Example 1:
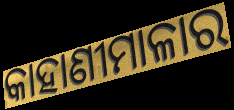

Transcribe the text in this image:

କାହାଣୀମାଳାର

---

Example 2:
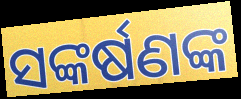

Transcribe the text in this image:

ସଙ୍କର୍ଷଣଙ୍କ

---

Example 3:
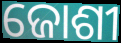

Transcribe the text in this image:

ଜୋଶୀ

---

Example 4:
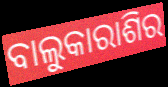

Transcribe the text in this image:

ବାଲୁକାରାଶିର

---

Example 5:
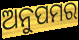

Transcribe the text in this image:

ଅନୁପମର